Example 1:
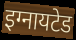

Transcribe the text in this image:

इग्नायटेड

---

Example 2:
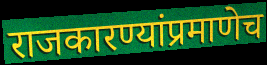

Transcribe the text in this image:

राजकारण्यांप्रमाणेच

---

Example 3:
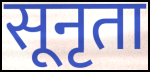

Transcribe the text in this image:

सूनृता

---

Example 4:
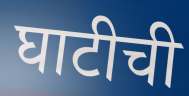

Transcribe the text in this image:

घाटीची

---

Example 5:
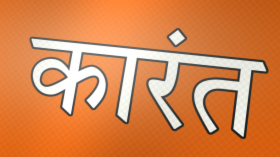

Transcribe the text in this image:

कारंत